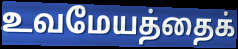
உவமேயத்தைக்